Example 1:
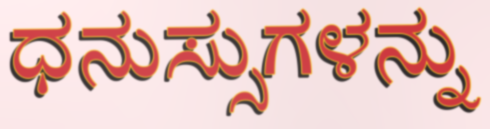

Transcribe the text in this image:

ಧನುಸ್ಸುಗಳನ್ನು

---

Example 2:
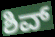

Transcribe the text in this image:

ಶಿವ್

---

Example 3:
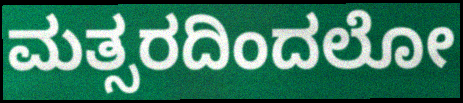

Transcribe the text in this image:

ಮತ್ಸರದಿಂದಲೋ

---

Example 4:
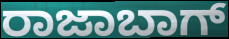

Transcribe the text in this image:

ರಾಜಾಬಾಗ್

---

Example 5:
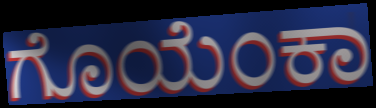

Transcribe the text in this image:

ಗೊಯೆಂಕಾ